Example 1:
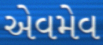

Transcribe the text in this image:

એવમેવ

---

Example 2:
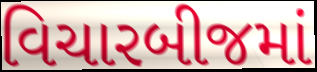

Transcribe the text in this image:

વિચારબીજમાં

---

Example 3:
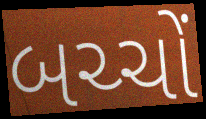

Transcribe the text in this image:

બચ્ચોં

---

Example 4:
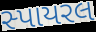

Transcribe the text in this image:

સ્પાયરલ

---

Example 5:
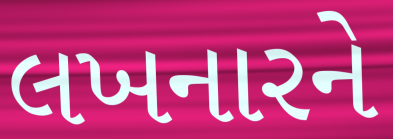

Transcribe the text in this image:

લખનારને